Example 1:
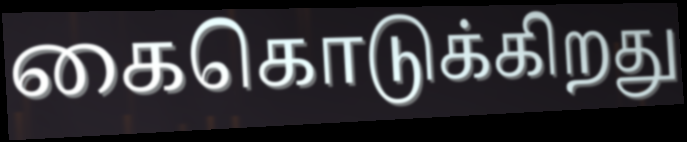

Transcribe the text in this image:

கைகொடுக்கிறது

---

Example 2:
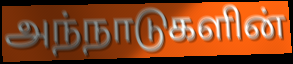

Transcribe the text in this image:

அந்நாடுகளின்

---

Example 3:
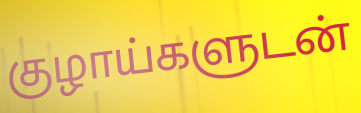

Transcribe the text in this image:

குழாய்களுடன்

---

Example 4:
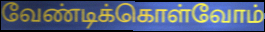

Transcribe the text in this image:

வேண்டிக்கொள்வோம்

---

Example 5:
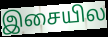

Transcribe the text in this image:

இசையில